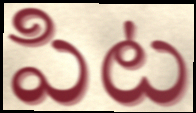
పిట